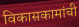
विकासकामांची